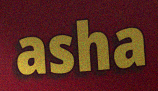
asha